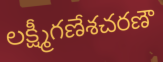
లక్ష్మీగణేశచరణౌ